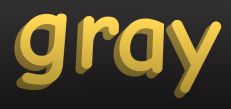
gray